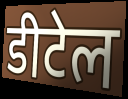
डीटेल